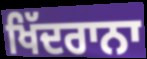
ਖਿੱਦਰਾਨਾ